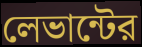
লেভান্টের